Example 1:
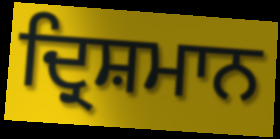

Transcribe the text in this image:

ਦ੍ਰਿਸ਼ਮਾਨ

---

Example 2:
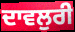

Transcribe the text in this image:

ਦਾਵਲੁਰੀ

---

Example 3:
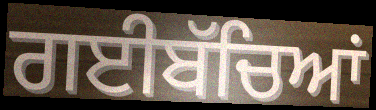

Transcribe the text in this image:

ਗਈਬੱਚਿਆਂ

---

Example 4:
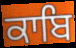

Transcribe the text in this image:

ਕਾਬਿ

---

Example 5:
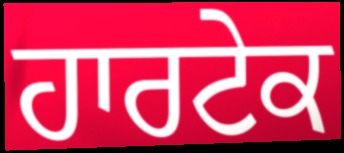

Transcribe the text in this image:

ਹਾਰਟੇਕ